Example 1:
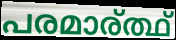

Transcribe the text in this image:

പരമാര്ത്ഥ്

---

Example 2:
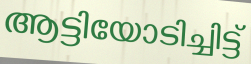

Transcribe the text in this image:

ആട്ടിയോടിച്ചിട്ട്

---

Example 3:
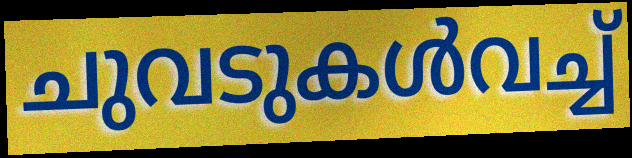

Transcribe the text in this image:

ചുവടുകൾവച്ച്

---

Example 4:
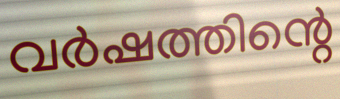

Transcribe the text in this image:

വർഷത്തിന്റെ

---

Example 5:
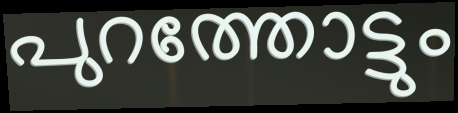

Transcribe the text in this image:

പുറത്തോട്ടും